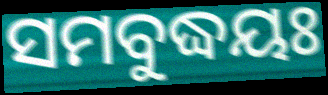
ସମବୁଦ୍ଧୟଃ